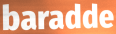
baradde